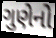
ગુણેનો